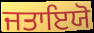
ਜਤਾਇਯੋ